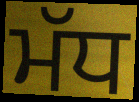
ਮੱਧ